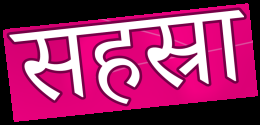
सहस्रा